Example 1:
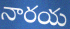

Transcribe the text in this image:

నారయ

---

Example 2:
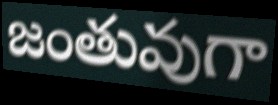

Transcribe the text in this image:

జంతువుగా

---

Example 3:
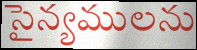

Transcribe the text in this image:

సైన్యములను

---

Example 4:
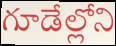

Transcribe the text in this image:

గూడేల్లోని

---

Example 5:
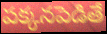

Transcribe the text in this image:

పక్కనపెడితే